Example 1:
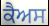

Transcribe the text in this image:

ਕੈਅਸ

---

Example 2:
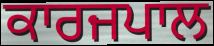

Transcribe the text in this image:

ਕਾਰਜਪਾਲ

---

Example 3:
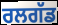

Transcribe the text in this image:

ਰਲਗੱਡ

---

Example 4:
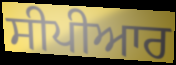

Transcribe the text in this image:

ਸੀਪੀਆਰ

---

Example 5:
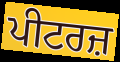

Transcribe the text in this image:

ਪੀਟਰਜ਼